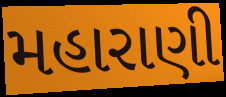
મહારાણી